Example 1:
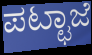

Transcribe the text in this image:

ಪಟ್ಟಾಜೆ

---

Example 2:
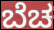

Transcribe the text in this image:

ಬೆಚ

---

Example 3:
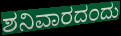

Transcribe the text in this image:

ಶನಿವಾರದಂದು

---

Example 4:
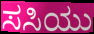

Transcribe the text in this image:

ಸಸಿಯು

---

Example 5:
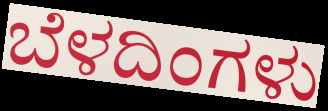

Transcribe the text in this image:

ಬೆಳದಿಂಗಳು